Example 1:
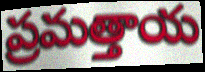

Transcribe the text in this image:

ప్రమత్తాయ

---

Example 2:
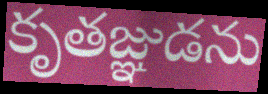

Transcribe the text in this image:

కృతజ్ఞుడను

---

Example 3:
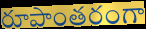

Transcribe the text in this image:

రూపాంతరంగా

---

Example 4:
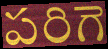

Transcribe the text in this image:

పరిగె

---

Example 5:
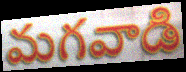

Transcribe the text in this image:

మగవాడి